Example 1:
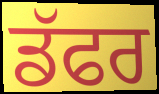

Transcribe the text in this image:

ਡੱਫਰ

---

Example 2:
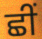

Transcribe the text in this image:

ਛੀਂ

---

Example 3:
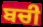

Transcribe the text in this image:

ਬਚੀ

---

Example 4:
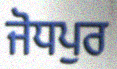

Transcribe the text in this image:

ਜੋਧਪੁਰ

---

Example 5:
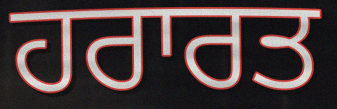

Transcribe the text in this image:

ਹਰਾਰਤ